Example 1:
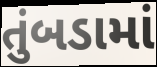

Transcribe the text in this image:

તુંબડામાં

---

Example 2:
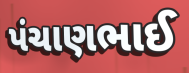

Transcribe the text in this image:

પંચાણભાઈ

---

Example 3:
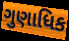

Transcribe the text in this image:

ગુણાધિક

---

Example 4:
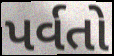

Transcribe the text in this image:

પર્વતો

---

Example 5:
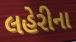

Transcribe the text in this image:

લહેરીના